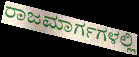
ರಾಜಮಾರ್ಗಗಳಲ್ಲಿ